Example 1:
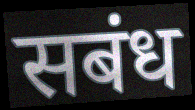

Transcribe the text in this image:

सबंध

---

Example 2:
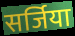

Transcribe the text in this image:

सर्जिया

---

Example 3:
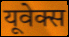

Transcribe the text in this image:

यूवेक्स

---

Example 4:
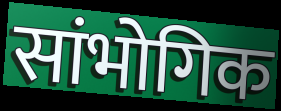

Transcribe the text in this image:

सांभोगिक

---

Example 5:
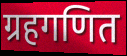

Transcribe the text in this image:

ग्रहगणित